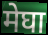
मेघा